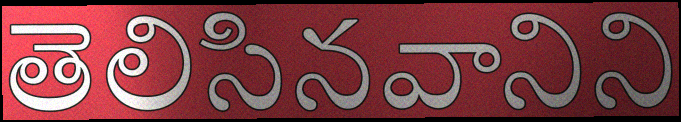
తెలిసినవానిని